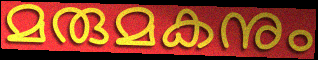
മരുമകനും